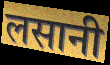
लसानी